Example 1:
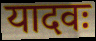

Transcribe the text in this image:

यादवः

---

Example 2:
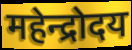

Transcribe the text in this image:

महेन्द्रोदय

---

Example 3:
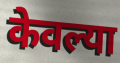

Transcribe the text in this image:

केवल्या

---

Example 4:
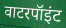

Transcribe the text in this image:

वाटरपॉइंट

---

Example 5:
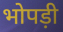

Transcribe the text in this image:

भोपड़ी